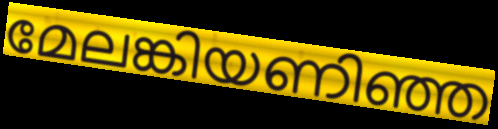
മേലങ്കിയണിഞ്ഞ